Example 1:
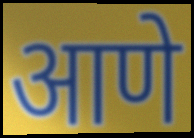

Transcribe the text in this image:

आणे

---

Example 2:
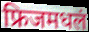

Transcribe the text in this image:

फ्रिजमधलं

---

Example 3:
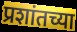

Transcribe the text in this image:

प्रशांतच्या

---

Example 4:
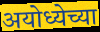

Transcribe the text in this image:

अयोध्येच्या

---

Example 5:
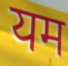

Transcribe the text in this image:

यम